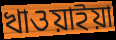
খাওয়াইয়া